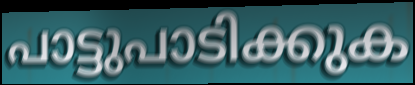
പാട്ടുപാടിക്കുക